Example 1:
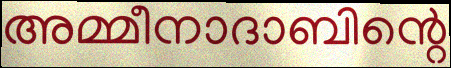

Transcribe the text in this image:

അമ്മീനാദാബിന്റെ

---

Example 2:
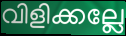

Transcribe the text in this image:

വിളിക്കല്ലേ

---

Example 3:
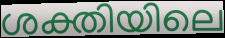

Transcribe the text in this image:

ശക്തിയിലെ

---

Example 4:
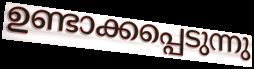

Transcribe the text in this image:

ഉണ്ടാക്കപ്പെടുന്നു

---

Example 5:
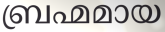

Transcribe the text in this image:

ബ്രഹ്മമായ